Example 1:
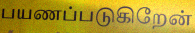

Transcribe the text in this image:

பயணப்படுகிறேன்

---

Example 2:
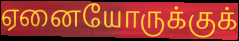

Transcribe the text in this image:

ஏனையோருக்குக்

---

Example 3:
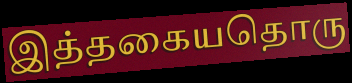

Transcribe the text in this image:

இத்தகையதொரு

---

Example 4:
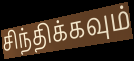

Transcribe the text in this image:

சிந்திக்கவும்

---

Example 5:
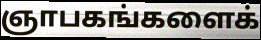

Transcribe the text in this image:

ஞாபகங்களைக்